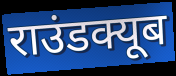
राउंडक्यूब